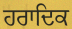
ਹਰਾਦਿਕ